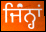
ਜਿੰਂਨ੍ਹਾਂ